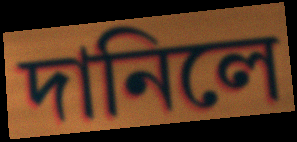
দানিলে